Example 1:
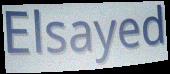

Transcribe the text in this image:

Elsayed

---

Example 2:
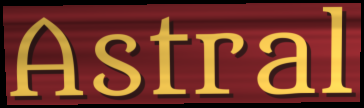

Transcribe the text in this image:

Astral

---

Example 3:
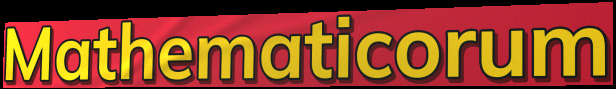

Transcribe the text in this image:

Mathematicorum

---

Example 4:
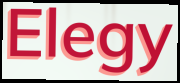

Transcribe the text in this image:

Elegy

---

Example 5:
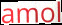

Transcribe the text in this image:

amol